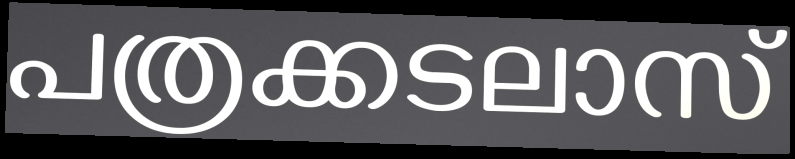
പത്രക്കടലാസ്